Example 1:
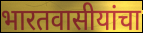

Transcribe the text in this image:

भारतवासीयांचा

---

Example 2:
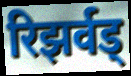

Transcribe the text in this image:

रिझर्वड्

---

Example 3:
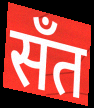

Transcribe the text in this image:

सँत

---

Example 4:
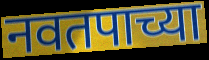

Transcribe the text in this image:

नवतपाच्या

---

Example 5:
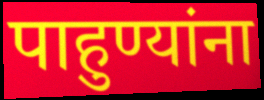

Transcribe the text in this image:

पाहुण्यांना